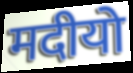
मदीयो